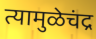
त्यामुळेचंद्र